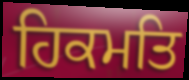
ਹਿਕਮਤਿ